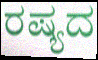
ರಷ್ಯದ